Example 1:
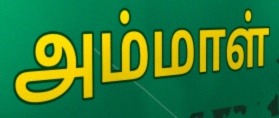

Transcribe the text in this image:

அம்மாள்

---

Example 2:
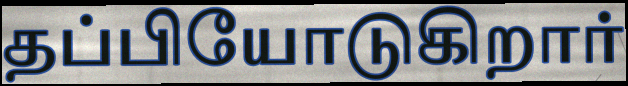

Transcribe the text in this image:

தப்பியோடுகிறார்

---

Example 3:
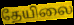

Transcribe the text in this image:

தேயிலை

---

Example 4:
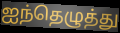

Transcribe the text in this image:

ஐந்தெழுத்து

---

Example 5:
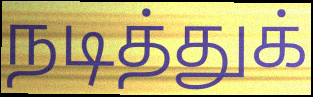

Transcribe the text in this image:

நடித்துக்